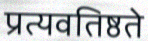
प्रत्यवतिष्ठते